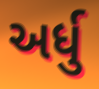
અર્ધુ